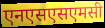
एनएसएसएमसी